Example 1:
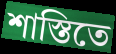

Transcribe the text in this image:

শাস্তিতে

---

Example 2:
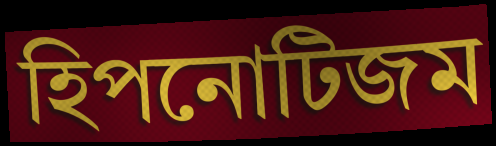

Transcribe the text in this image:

হিপনোটিজম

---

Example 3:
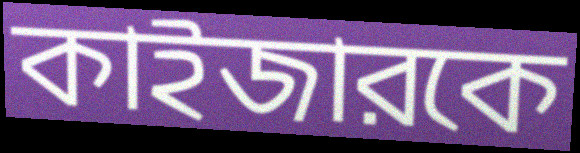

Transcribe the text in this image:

কাইজারকে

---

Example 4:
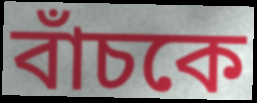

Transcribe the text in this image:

বাঁচকে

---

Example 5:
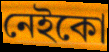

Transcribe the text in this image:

নেইকো